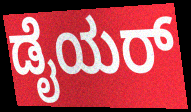
ಡೈಯರ್